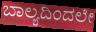
ಬಾಲ್ಯದಿಂದಲೇ